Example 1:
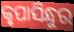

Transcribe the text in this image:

କୃପାସିନ୍ଧୁର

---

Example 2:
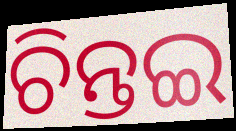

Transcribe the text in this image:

ଚିନ୍ତଇ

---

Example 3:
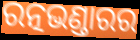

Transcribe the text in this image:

ରତ୍ନଭଣ୍ଡାରର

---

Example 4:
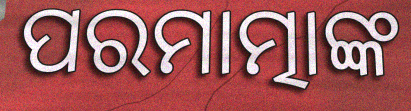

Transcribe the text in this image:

ପରମାତ୍ମାଙ୍କ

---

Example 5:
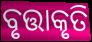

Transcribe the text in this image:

ବୃତ୍ତାକୃତି